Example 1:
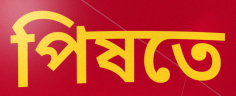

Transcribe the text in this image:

পিষতে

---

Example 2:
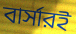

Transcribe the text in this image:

বার্সারই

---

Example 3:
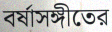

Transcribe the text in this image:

বর্ষাসঙ্গীতের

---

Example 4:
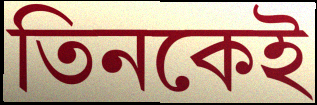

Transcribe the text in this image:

তিনকেই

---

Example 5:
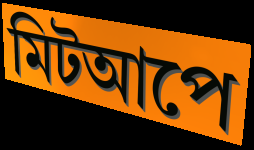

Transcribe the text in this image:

মিটআপে